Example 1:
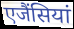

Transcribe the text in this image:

एजैंसियां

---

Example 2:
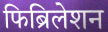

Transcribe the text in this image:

फिब्रिलेशन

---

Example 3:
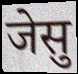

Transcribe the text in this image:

जेसु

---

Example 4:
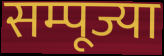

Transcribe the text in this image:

सम्पूज्या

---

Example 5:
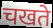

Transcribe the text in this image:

चखते